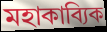
মহাকাব্যিক